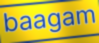
baagam